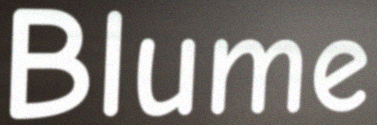
Blume